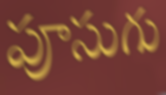
పూసుగు